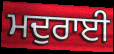
ਮਦੁਰਾਈ